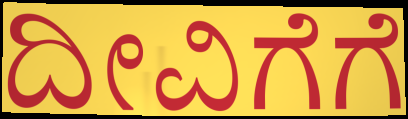
ದೀವಿಗೆಗೆ